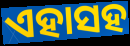
ଏହାସହ